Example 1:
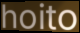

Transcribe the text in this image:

hoito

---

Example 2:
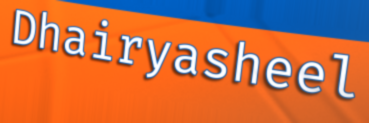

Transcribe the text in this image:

Dhairyasheel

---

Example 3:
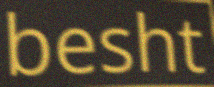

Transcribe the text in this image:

besht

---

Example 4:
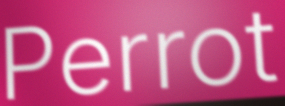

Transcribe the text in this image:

Perrot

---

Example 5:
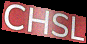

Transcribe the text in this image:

CHSL